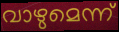
വാഴുമെന്ന്